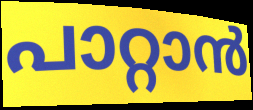
പാറ്റാൻ